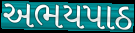
અભયપાઠ